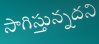
సాగిస్తున్నదని